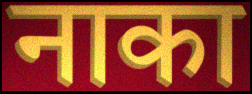
नाका